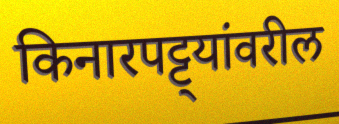
किनारपट्ट्यांवरील